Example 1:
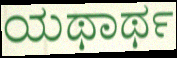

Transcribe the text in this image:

ಯಥಾರ್ಥ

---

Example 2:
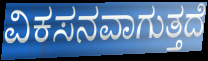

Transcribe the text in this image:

ವಿಕಸನವಾಗುತ್ತದೆ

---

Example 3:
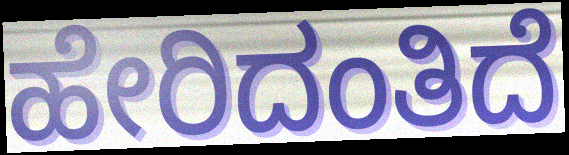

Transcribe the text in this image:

ಹೇರಿದಂತಿದೆ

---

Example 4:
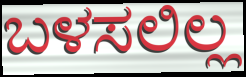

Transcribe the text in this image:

ಬಳಸಲಿಲ್ಲ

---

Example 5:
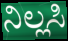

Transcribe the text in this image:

ನಿಲ್ಲಸಿ